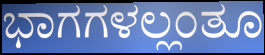
ಭಾಗಗಳಲ್ಲಂತೂ